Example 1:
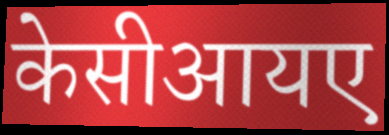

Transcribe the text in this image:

केसीआयए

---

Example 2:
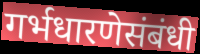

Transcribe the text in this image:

गर्भधारणेसंबंधी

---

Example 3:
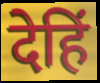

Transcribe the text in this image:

देहिं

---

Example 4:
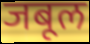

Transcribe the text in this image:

जबूल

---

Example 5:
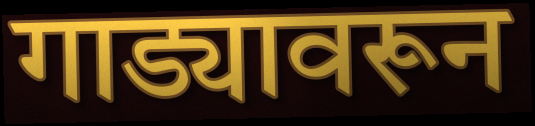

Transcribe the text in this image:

गाड्यावरून